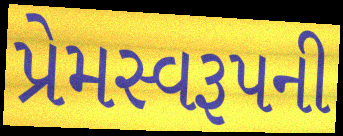
પ્રેમસ્વરૂપની